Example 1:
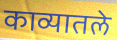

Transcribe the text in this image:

काव्यातले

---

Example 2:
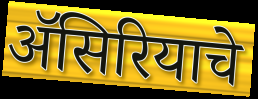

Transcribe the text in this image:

ॲसिरियाचे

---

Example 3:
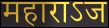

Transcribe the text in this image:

महाराऽज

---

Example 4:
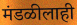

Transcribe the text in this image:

मंडळीलाही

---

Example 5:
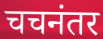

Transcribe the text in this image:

चचनंतर